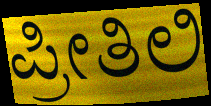
ಪ್ರೀತಿಲಿ